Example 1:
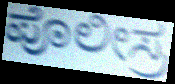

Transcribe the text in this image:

ಪೊಲೀಸ್ರ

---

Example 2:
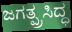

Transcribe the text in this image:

ಜಗತ್ಪ್ರಸಿದ್ಧ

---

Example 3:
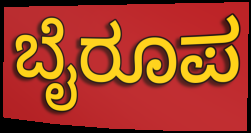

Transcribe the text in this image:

ಬೈರೂಪ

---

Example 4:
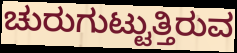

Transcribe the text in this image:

ಚುರುಗುಟ್ಟುತ್ತಿರುವ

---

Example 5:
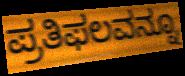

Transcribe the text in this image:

ಪ್ರತಿಫಲವನ್ನೂ